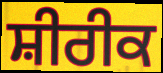
ਸ਼ੀਰੀਕ